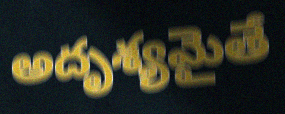
అదృశ్యమైతే